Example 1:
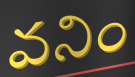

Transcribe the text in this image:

వనిం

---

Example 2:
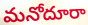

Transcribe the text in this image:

మనోదూరా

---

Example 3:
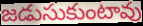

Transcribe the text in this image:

జడుసుకుంటావు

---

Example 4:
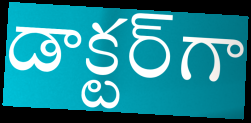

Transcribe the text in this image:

డాక్టర్‌గా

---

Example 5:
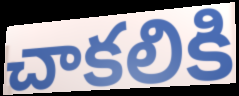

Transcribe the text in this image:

చాకలికి